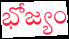
భోజ్యం